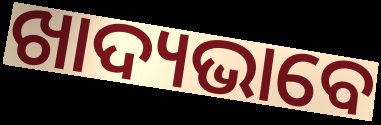
ଖାଦ୍ୟଭାବେ